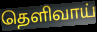
தெளிவாய்